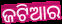
ଜଟିଆର